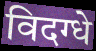
विदग्धे